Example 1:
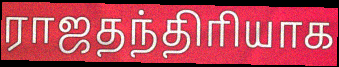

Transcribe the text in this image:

ராஜதந்திரியாக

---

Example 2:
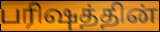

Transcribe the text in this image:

பரிஷத்தின்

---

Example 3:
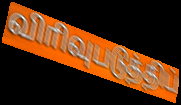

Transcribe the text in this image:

விரிவுபடுத்திப்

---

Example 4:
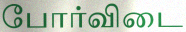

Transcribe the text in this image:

போர்விடை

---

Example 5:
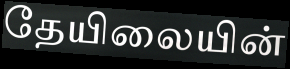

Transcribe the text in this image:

தேயிலையின்